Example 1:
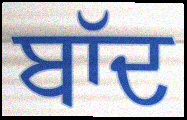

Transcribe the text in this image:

ਬਾੱਦ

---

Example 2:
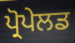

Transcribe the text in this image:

ਪ੍ਰੋਪੇਲਡ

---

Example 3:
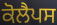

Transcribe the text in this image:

ਕੋਲੈਪਸ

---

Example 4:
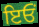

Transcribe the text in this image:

ਇਓਂ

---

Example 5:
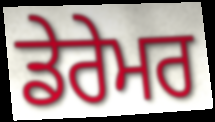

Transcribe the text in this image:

ਡੇਰੇਮਰ